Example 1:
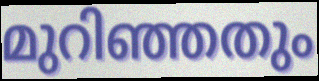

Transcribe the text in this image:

മുറിഞ്ഞതും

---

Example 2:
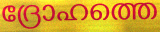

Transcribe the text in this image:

ദ്രോഹത്തെ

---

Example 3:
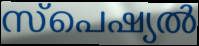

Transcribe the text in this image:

സ്‌പെഷ്യൽ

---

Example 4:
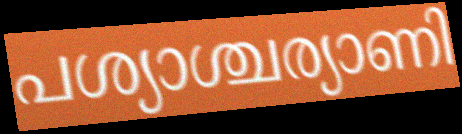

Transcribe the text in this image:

പശ്യാശ്ചര്യാണി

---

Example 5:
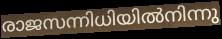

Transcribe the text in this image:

രാജസന്നിധിയിൽനിന്നു